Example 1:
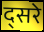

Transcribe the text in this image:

द्सरे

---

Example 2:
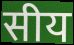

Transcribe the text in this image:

सीय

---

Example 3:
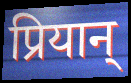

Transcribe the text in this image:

प्रियान्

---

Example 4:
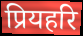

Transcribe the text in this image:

प्रियहरि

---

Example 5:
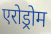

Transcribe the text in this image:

एरोड्रोम